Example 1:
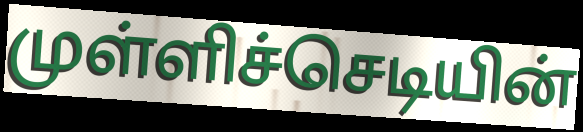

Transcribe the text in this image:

முள்ளிச்செடியின்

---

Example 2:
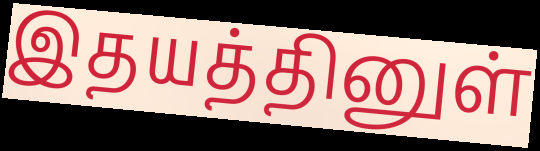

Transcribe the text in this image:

இதயத்தினுள்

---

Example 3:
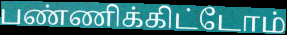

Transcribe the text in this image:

பண்ணிக்கிட்டோம்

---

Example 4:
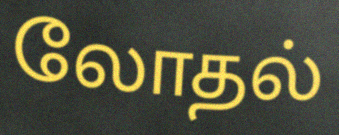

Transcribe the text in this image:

லோதல்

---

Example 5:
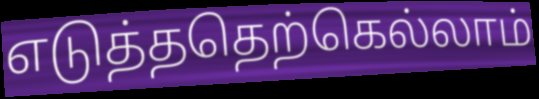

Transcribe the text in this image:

எடுத்ததெற்கெல்லாம்